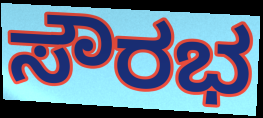
ಸೌರಭ